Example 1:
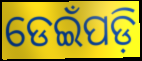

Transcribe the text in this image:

ଡେଇଁପଡ଼ି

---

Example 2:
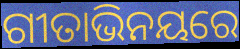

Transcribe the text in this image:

ଗୀତାଭିନୟରେ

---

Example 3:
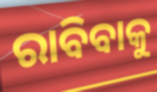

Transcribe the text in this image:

ରାବିବାକୁ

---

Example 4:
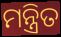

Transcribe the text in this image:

ମନ୍ତ୍ରିତ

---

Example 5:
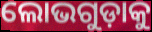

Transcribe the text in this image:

ଲୋଭଗୁଡ଼ାକୁ